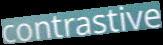
contrastive